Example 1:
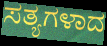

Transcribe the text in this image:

ಸತ್ಯಗಳಾದ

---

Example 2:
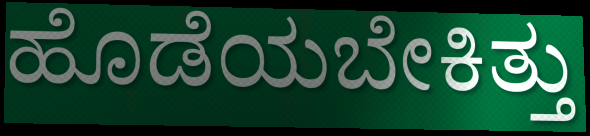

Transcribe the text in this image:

ಹೊಡೆಯಬೇಕಿತ್ತು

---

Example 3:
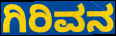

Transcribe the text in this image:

ಗಿರಿವನ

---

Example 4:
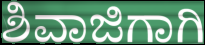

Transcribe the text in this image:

ಶಿವಾಜಿಗಾಗಿ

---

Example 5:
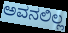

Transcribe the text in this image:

ಅವನಲಿಲ್ಲ